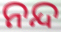
ନନ୍ଦ